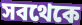
সবথেকে